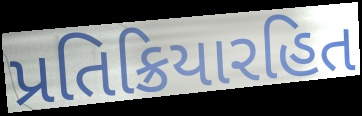
પ્રતિક્રિયારહિત